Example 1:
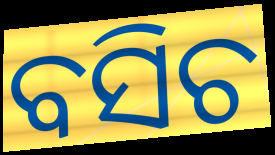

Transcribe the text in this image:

ବସିଚ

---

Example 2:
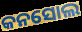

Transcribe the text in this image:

କନସୋଲ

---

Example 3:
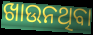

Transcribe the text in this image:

ଖାଉନଥିବା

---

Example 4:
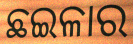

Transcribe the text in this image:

ଛଇଳାର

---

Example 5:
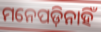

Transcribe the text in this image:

ମନେପଡ଼ିନାହିଁ